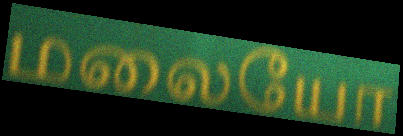
மலையோ